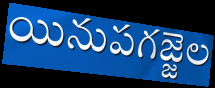
యినుపగజ్జెల